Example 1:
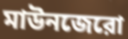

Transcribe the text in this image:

মাউনজেরো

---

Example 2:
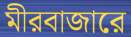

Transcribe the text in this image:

মীরবাজারে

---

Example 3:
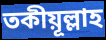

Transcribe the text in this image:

তকীয়ূল্লাহ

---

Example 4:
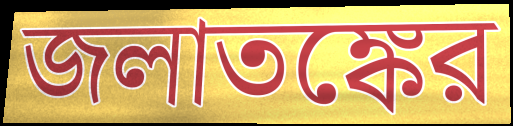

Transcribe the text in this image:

জলাতঙ্কের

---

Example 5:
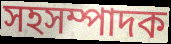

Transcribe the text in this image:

সহসম্পাদক